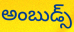
అంబుడ్స్